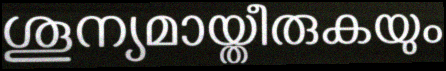
ശൂന്യമായ്തീരുകയും